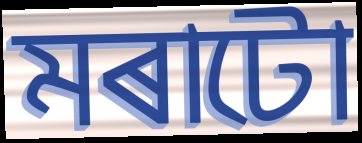
মৰাটো